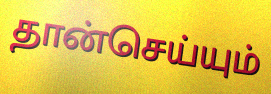
தான்செய்யும்